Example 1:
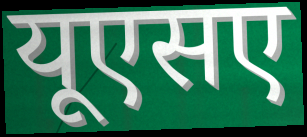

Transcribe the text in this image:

यूएसए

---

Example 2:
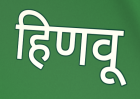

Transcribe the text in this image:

हिणवू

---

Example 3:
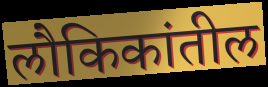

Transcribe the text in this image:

लौकिकांतील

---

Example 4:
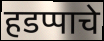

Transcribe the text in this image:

हडप्पाचे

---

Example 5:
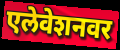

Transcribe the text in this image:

एलेवेशनवर